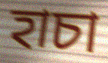
হাচা